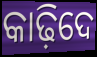
କାଢ଼ିଦେ